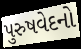
પુરુષવેદનો